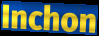
Inchon